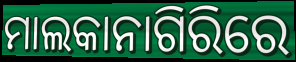
ମାଲକାନାଗିରିରେ